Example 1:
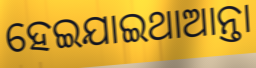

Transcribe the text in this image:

ହେଇଯାଇଥାଆନ୍ତା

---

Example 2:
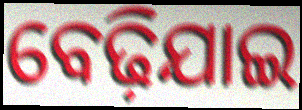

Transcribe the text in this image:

ବେଢ଼ିଯାଇ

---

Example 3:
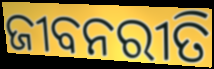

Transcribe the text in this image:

ଜୀବନରୀତି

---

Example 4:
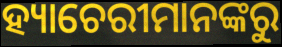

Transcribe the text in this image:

ହ୍ୟାଚେରୀମାନଙ୍କରୁ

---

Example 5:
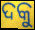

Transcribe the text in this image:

ଦକୁ